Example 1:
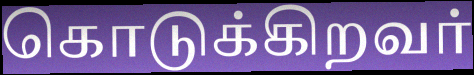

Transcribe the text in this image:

கொடுக்கிறவர்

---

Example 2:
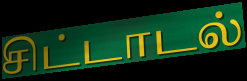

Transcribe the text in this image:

சிட்டாடல்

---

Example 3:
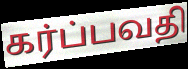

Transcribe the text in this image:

கர்ப்பவதி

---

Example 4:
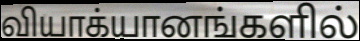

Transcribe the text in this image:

வியாக்யானங்களில்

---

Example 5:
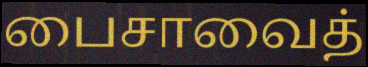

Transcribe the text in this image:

பைசாவைத்